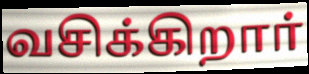
வசிக்கிறார்